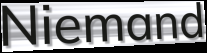
Niemand